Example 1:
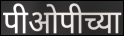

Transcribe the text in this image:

पीओपीच्या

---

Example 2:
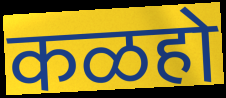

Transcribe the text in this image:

कळहो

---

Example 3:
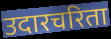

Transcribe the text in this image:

उदारचरिता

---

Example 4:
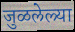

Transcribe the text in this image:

जुळलेल्या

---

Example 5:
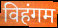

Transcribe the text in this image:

विहंगम